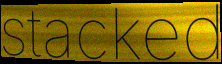
stacked